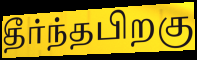
தீர்ந்தபிறகு